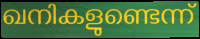
ഖനികളുണ്ടെന്ന്